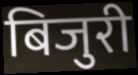
बिजुरी